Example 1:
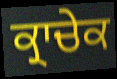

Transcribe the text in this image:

ਕ੍ਰਾਚੇਕ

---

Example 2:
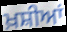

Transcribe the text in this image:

ਖ਼ਸ਼ੀਆਂ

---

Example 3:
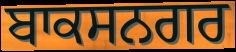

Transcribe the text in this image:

ਬਾਕਸਨਗਰ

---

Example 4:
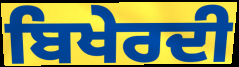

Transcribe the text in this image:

ਬਿਖੇਰਦੀ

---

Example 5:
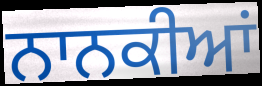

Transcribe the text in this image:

ਨਾਨਕੀਆਂ